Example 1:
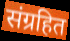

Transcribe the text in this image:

संग्रहित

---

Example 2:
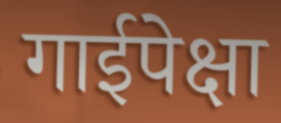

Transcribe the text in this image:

गाईपेक्षा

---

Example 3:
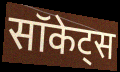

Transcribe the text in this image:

सॉकेट्स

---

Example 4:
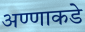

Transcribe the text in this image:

अण्णाकडे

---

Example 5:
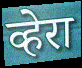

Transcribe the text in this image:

व्हेरा